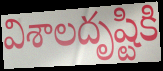
విశాలదృష్టికి